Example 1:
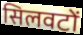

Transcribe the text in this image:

सिलवटों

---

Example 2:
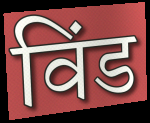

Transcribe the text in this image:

विंड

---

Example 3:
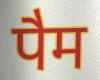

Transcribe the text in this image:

पैम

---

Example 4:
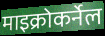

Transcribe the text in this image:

माइक्रोकर्नेल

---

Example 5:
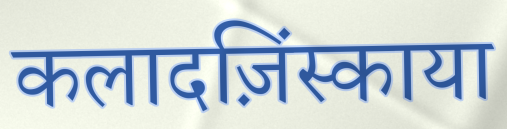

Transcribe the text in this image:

कलादज़िंस्काया